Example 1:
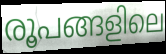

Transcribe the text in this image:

രൂപങ്ങളിലെ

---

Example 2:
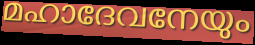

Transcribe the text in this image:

മഹാദേവനേയും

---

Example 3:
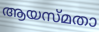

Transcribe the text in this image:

ആയസ്മതാ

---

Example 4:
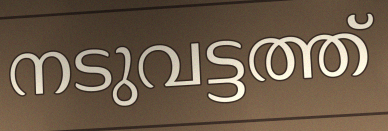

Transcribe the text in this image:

നടുവട്ടത്ത്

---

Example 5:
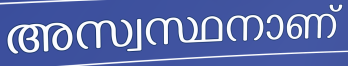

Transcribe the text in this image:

അസ്വസ്ഥനാണ്